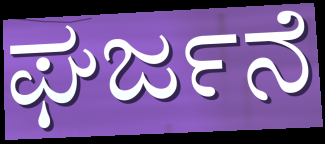
ಘರ್ಜನೆ